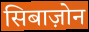
सिबाज़ोन